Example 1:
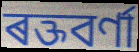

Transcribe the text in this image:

ৰক্তবৰ্ণা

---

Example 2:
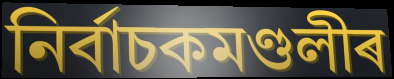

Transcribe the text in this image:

নিৰ্বাচকমণ্ডলীৰ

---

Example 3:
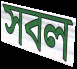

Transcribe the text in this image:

সবল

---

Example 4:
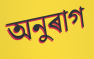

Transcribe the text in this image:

অনুৰাগ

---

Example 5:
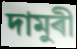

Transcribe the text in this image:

দামুৰী